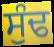
ਸੁੰਢ